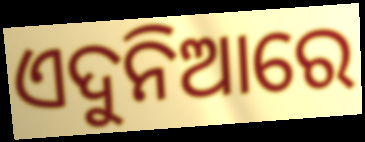
ଏଦୁନିଆରେ